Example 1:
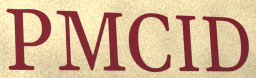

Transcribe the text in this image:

PMCID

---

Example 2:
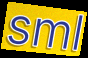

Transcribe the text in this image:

sml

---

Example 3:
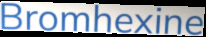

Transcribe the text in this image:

Bromhexine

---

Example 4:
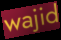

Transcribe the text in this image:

wajid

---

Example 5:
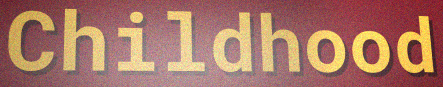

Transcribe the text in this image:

Childhood